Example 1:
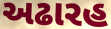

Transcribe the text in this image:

અઢારહ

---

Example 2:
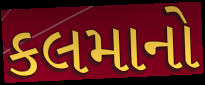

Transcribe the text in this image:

કલમાનો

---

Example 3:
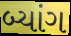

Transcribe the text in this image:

બ્યાંગ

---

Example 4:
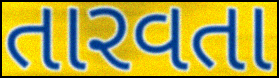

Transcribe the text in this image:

તારવતા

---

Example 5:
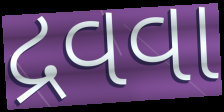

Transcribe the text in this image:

દ્રવવા